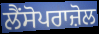
ਲੈਂਸੋਪਰਾਜ਼ੋਲ